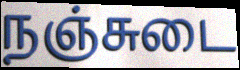
நஞ்சுடை